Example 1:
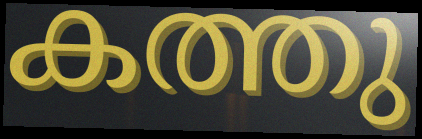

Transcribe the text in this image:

കത്തു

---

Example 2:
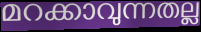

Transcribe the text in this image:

മറക്കാവുന്നതല്ല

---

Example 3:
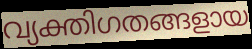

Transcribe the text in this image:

വ്യക്തിഗതങ്ങളായ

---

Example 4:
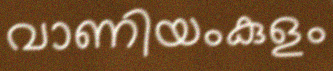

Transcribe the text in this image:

വാണിയംകുളം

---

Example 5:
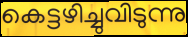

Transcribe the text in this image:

കെട്ടഴിച്ചുവിടുന്നു